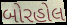
બોરહોલ